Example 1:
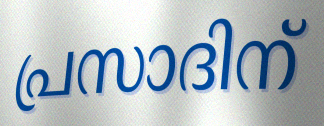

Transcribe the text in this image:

പ്രസാദിന്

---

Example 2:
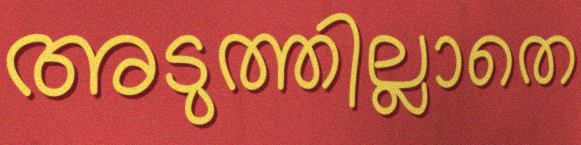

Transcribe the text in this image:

അടുത്തില്ലാതെ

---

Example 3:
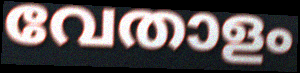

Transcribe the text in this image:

വേതാളം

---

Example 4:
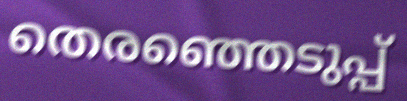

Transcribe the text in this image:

തെരഞ്ഞെടുപ്പ്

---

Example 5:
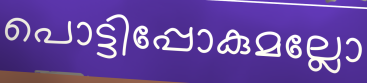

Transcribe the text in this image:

പൊട്ടിപ്പോകുമല്ലോ